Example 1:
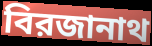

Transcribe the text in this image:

বিরজানাথ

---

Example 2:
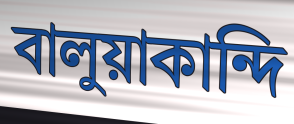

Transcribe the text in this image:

বালুয়াকান্দি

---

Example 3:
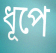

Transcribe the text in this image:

ধূপে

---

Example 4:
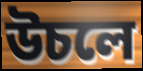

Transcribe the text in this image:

উচলে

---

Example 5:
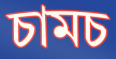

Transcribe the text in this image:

চামচ